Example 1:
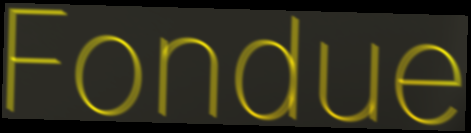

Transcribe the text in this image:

Fondue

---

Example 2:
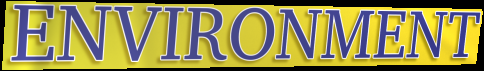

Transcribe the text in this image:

ENVIRONMENT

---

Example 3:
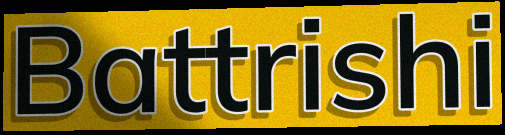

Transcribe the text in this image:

Battrishi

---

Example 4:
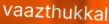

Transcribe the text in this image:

vaazthukkal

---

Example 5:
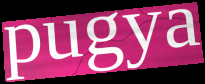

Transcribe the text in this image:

pugya